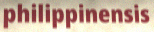
philippinensis